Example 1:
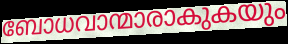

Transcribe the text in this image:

ബോധവാന്മാരാകുകയും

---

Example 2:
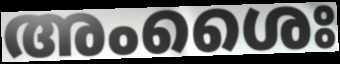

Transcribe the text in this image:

അംശൈഃ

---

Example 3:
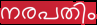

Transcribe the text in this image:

നരപതിം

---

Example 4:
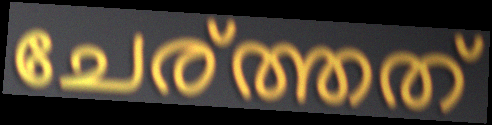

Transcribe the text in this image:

ചേര്ത്തത്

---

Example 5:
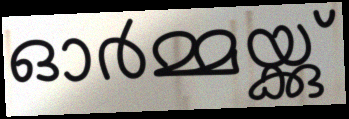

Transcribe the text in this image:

ഓർമ്മയ്ക്കു്